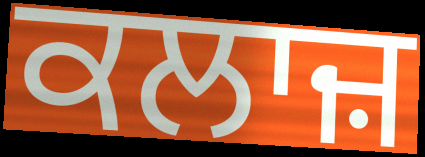
ਕਲਾਜ਼